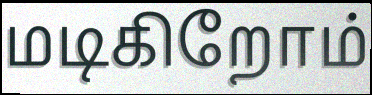
மடிகிறோம்